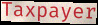
Taxpayer